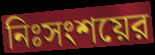
নিঃসংশয়ের